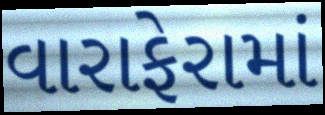
વારાફેરામાં